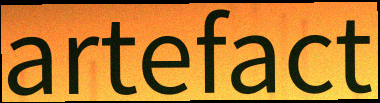
artefact